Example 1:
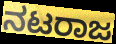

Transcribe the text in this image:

ನಟರಾಜ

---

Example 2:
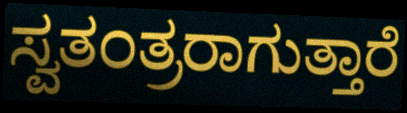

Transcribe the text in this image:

ಸ್ವತಂತ್ರರಾಗುತ್ತಾರೆ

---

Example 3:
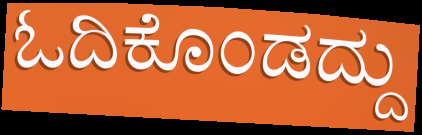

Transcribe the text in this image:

ಓದಿಕೊಂಡದ್ದು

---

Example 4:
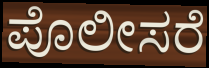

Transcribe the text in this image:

ಪೊಲೀಸರೆ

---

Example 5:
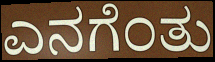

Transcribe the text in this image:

ಎನಗೆಂತು